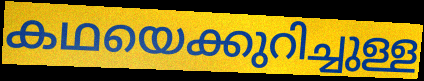
കഥയെക്കുറിച്ചുള്ള